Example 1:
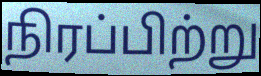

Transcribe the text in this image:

நிரப்பிற்று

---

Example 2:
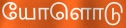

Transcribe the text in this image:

யோளொடு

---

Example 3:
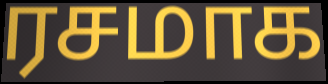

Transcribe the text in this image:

ரசமாக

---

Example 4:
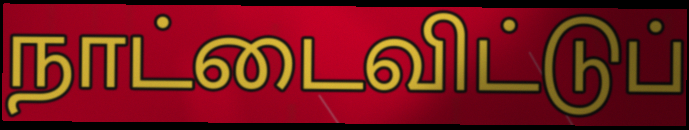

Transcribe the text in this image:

நாட்டைவிட்டுப்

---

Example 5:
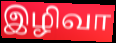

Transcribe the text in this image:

இழிவா